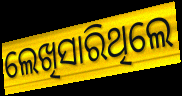
ଲେଖିସାରିଥିଲେ